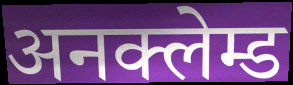
अनक्लेम्ड